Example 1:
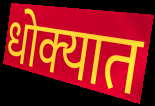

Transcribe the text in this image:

धोक्‍यात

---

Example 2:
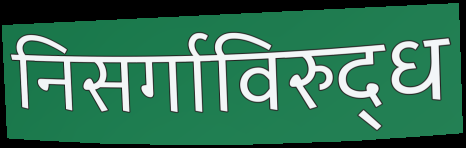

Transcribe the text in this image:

निसर्गाविरुद्ध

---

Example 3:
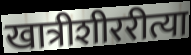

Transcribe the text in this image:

खात्रीशीररीत्या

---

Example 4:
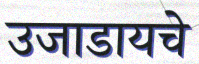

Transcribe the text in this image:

उजाडायचे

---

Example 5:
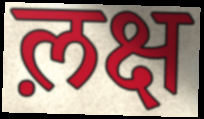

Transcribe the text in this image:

ल़क्ष